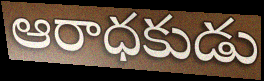
ఆరాధకుడు